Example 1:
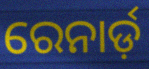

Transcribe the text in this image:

ରେନାର୍ଡ଼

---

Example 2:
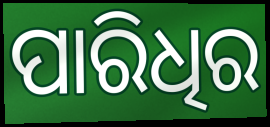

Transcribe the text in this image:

ପାରିଧିର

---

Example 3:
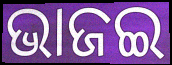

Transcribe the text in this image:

ଭାଜଇ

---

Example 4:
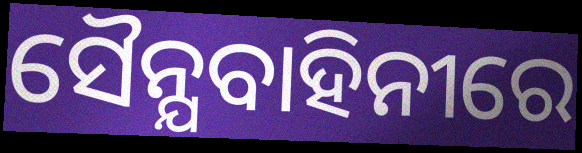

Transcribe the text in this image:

ସୈନ୍ଯବାହିନୀରେ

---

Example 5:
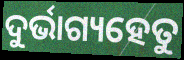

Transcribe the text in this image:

ଦୁର୍ଭାଗ୍ୟହେତୁ